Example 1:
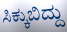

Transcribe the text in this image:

ಸಿಕ್ಕುಬಿದ್ದು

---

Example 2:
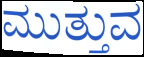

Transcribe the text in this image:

ಮುತ್ತುವ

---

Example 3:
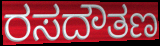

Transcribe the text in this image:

ರಸದೌತಣ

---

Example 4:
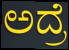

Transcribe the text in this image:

ಅದ್ರೆ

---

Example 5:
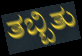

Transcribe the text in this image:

ತಬ್ಬಿತು